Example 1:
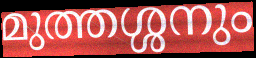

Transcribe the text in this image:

മുത്തശ്ശനും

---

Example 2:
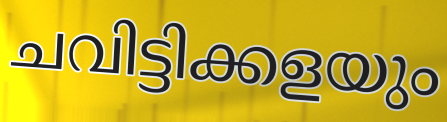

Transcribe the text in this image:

ചവിട്ടിക്കളയും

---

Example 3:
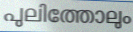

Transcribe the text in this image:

പുലിത്തോലും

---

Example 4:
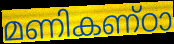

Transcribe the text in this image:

മണികണ്ഠാ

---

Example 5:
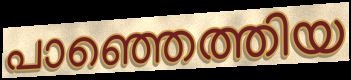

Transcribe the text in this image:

പാഞ്ഞെത്തിയ